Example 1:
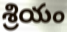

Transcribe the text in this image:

శ్రియం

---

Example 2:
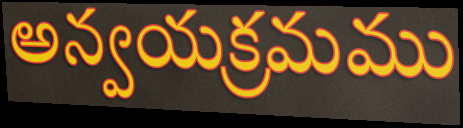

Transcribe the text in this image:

అన్వయక్రమము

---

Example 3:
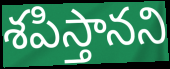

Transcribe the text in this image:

శపిస్తానని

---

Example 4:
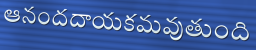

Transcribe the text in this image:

ఆనందదాయకమవుతుంది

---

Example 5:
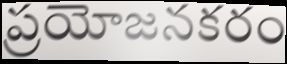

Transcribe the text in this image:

ప్రయోజనకరం